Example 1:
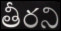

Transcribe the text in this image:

తీరని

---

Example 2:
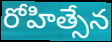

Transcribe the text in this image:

రోహిత్సేన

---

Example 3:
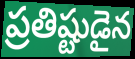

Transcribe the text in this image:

ప్రతిష్టుడైన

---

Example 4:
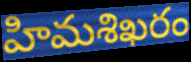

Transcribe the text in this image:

హిమశిఖరం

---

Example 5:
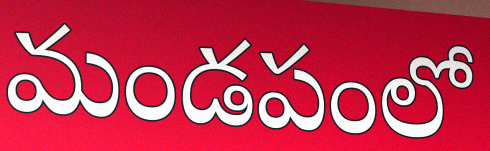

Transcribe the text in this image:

మండపంలో